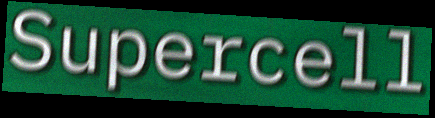
Supercell